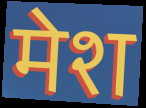
मेश